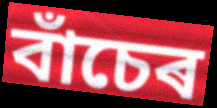
বাঁচেৰ